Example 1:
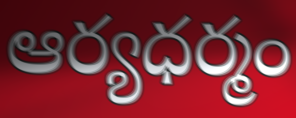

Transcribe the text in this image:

ఆర్యధర్మం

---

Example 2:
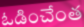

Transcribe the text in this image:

ఓడించేంత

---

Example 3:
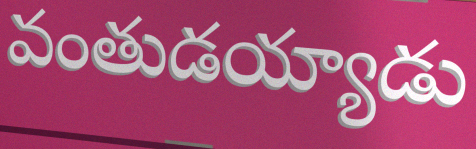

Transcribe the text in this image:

వంతుడయ్యాడు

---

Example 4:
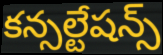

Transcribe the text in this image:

కన్సల్టేషన్స్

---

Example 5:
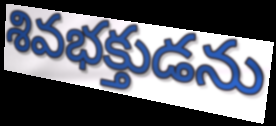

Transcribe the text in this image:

శివభక్తుడను